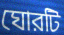
ঘোরটি